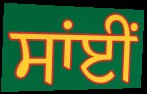
ਸਾਂਈਂ